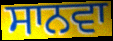
ਸਾਨਵਾ